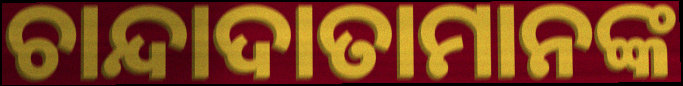
ଚାନ୍ଦାଦାତାମାନଙ୍କ